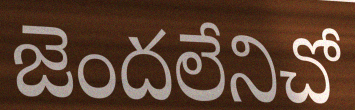
జెందలేనిచో